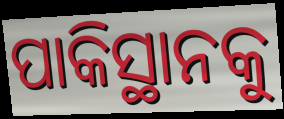
ପାକିସ୍ଥାନକୁ